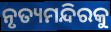
ନୃତ୍ୟମନ୍ଦିରକୁ